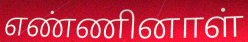
எண்ணினாள்